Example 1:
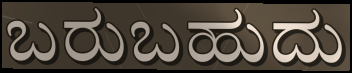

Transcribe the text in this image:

ಬರುಬಹುದು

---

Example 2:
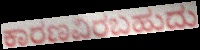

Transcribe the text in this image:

ಕಾರಣವಿರಬಹುದು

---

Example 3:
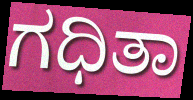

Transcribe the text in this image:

ಗಧಿತಾ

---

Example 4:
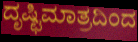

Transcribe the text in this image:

ದೃಷ್ಟಿಮಾತ್ರದಿಂದ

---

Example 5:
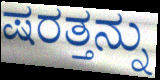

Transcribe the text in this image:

ಷರತ್ತನ್ನು